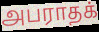
அபராதக்